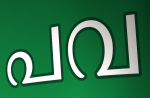
പവ